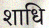
शाधि